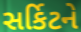
સર્કિટને